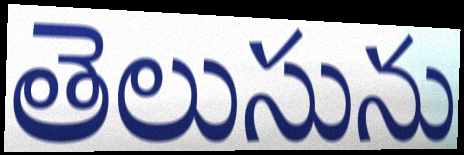
తెలుసును